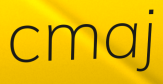
cmaj